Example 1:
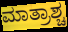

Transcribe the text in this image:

ಮಾತ್ರಾಶ್ಚ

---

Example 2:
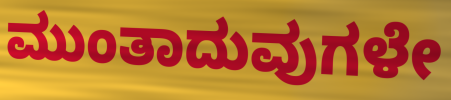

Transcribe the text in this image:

ಮುಂತಾದುವುಗಳೇ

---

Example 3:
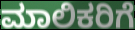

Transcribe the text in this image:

ಮಾಲಿಕರಿಗೆ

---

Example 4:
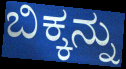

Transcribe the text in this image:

ಬಿಕ್ಕನ್ನು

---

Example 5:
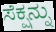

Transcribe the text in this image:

ಸೆಕ್ಷನ್ನು